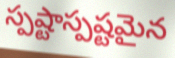
స్పష్టాస్పష్టమైన